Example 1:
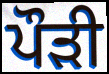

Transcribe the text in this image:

ਪੌੜੀ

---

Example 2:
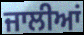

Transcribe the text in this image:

ਜਾਲੀਆਂ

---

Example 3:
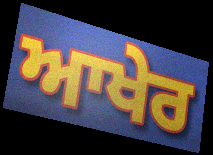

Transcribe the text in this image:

ਆਖੇਰ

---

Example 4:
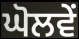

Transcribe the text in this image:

ਘੋਲਵੇਂ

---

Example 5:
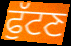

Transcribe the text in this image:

ਫੁੱਟਣ